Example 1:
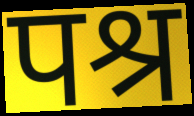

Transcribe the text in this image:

पश्र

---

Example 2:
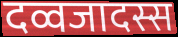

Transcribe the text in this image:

दव्वजादस्स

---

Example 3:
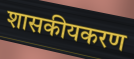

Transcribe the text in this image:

शासकीयकरण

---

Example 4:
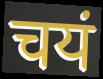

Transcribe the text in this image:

चयं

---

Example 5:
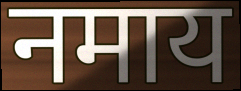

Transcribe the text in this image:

नमाय